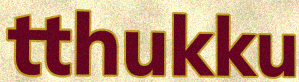
tthukku